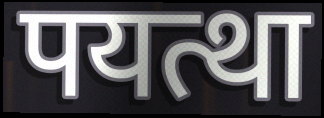
पयत्था